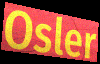
Osler